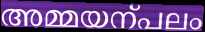
അമ്മയന്പലം